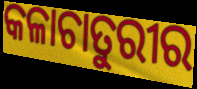
କଳାଚାତୁରୀର